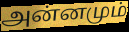
அன்னமும்